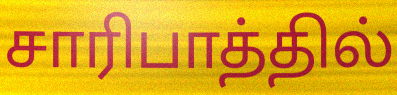
சாரிபாத்தில்